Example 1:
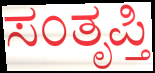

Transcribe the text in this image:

ಸಂತೃಪ್ತಿ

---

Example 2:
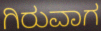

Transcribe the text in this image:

ಗಿರುವಾಗ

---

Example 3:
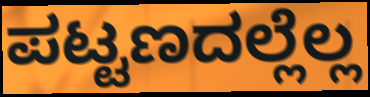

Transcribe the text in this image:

ಪಟ್ಟಣದಲ್ಲೆಲ್ಲ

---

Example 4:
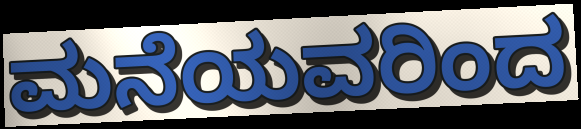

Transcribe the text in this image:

ಮನೆಯವರಿಂದ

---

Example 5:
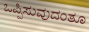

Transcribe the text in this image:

ಒಪ್ಪಿಸುವುದಂತೂ